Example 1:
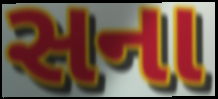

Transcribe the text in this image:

સના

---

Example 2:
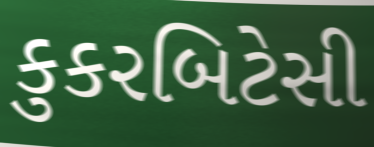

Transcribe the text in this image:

કુકરબિટેસી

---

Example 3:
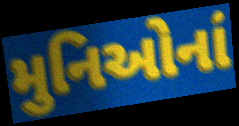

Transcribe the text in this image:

મુનિઓનાં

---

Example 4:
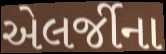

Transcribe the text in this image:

એલર્જીના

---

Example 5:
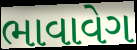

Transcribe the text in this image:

ભાવાવેગ